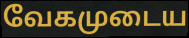
வேகமுடைய